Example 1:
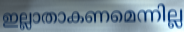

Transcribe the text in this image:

ഇല്ലാതാകണമെന്നില്ല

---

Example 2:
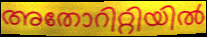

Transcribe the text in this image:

അതോറിറ്റിയിൽ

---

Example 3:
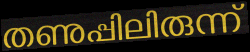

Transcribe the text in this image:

തണുപ്പിലിരുന്ന്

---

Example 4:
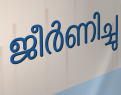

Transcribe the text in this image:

ജീർണിച്ചു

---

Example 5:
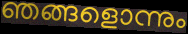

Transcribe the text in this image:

ഞങ്ങളൊന്നും